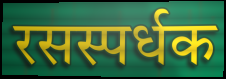
रसस्पर्धक